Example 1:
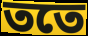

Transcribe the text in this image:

ততে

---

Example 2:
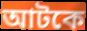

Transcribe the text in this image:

আটকে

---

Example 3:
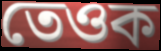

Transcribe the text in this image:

তেওক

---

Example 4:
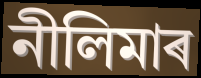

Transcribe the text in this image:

নীলিমাৰ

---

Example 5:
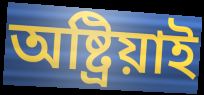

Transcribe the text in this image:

অষ্ট্ৰিয়াই